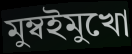
মুম্বইমুখো